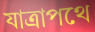
যাত্রাপথে